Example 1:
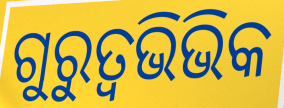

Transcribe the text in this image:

ଗୁରୁତ୍ଵଭିଭିକ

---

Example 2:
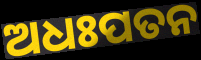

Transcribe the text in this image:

ଅଧଃପତନ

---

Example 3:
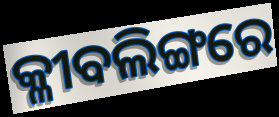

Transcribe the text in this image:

କ୍ଳୀବଲିଙ୍ଗରେ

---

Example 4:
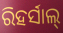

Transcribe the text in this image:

ରିହର୍ସାଲ୍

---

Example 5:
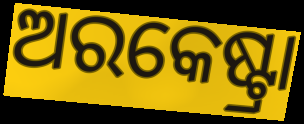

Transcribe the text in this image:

ଅରକେଷ୍ଟ୍ରା